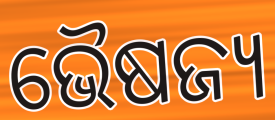
ଭୈଷଜ୍ୟ